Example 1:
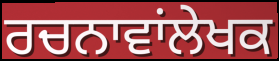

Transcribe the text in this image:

ਰਚਨਾਵਾਂਲੇਖਕ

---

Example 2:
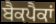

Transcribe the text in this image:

ਬੈਕਪੈਕਾਂ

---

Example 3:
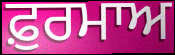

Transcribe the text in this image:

ਫ਼ੁਰਮਾਅ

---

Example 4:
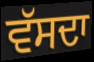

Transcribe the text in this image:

ਵੱਸਦਾ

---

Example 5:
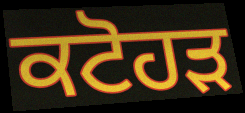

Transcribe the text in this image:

ਕਟੋਹੜ